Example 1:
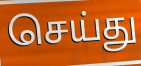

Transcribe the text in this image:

செய்து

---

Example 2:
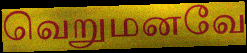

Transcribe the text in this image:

வெறுமனவே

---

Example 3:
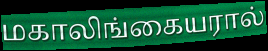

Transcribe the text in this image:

மகாலிங்கையரால்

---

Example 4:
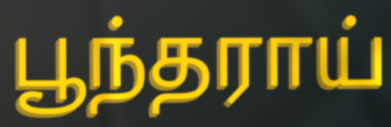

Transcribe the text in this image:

பூந்தராய்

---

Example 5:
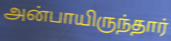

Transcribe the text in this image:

அன்பாயிருந்தார்